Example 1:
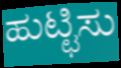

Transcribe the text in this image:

ಹುಟ್ಟಿಸು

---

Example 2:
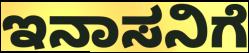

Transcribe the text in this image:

ಇನಾಸನಿಗೆ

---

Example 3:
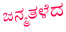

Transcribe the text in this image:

ಜನ್ಮತಳೆದ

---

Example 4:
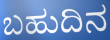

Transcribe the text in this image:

ಬಹುದಿನ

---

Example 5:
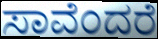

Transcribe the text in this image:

ಸಾವೆಂದರೆ